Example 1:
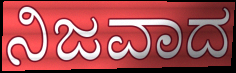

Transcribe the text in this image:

ನಿಜವಾದ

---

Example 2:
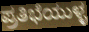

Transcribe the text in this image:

ಪ್ರತಿಭೆಯುಳ್ಳ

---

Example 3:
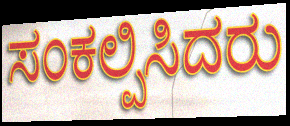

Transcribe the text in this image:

ಸಂಕಲ್ಪಿಸಿದರು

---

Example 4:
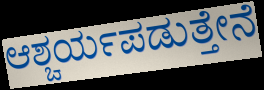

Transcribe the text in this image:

ಆಶ್ಚರ್ಯಪಡುತ್ತೇನೆ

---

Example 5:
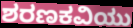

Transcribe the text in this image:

ಶರಣಕವಿಯು